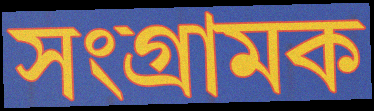
সংগ্ৰামক